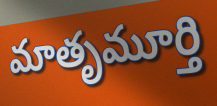
మాతృమూర్తి